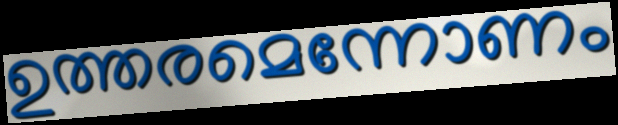
ഉത്തരമെന്നോണം